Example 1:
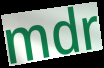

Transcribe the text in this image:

mdr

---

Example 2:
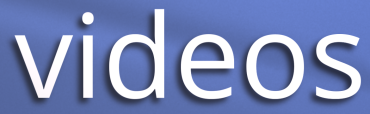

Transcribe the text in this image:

videos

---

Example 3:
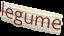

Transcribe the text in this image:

legume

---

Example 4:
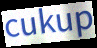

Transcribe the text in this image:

cukup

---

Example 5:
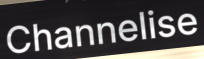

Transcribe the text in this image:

Channelise